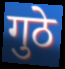
गुठे